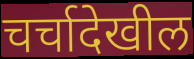
चर्चादेखील